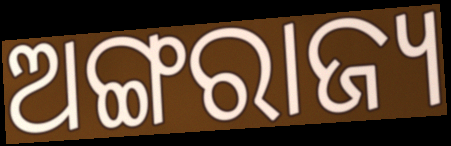
ଅଙ୍ଗରାଜ୍ୟ